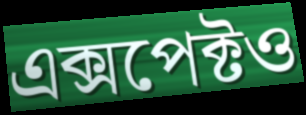
এক্সপেক্টও